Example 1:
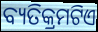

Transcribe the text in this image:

ବ୍ୟତିକ୍ରମଟିଏ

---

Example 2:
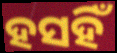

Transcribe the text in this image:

ହସହିଁ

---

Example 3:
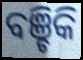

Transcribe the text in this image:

ବଞ୍ଚିକି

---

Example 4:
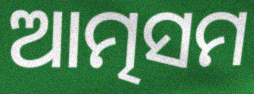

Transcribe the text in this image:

ଆତ୍ମସମ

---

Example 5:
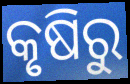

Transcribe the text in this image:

କୃଷିରୁ